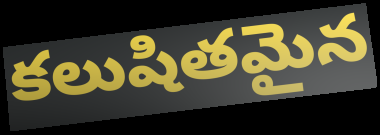
కలుషితమైన